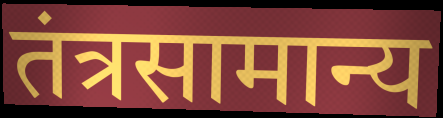
तंत्रसामान्य